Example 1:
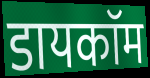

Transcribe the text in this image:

डायकॉम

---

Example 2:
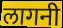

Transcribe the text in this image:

लागनी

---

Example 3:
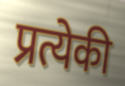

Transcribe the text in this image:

प्रत्येकी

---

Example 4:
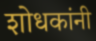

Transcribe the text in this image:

शोधकांनी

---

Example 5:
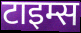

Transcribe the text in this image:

टाइम्स